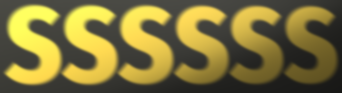
SSSSSS